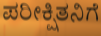
ಪರೀಕ್ಷಿತನಿಗೆ